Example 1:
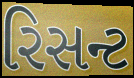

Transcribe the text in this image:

રિસન્ટ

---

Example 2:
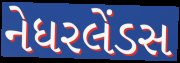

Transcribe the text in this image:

નેધરલેંડસ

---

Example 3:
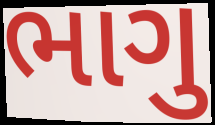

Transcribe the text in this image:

ભાગુ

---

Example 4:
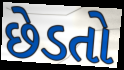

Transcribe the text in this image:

છેડતો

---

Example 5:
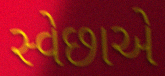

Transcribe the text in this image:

સ્વેછાએ